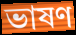
ভাষণ